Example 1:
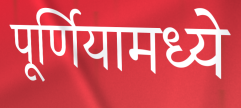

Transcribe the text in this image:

पूर्णियामध्ये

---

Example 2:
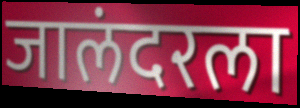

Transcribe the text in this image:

जालंदरला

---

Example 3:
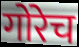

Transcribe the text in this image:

गोरेच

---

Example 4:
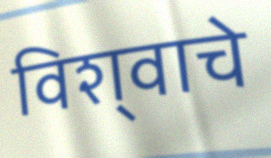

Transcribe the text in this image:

विश्वाचे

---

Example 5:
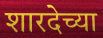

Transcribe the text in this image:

शारदेच्या